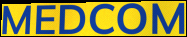
MEDCOM